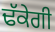
ਢੱਕੇਗੀ